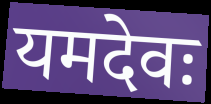
यमदेवः